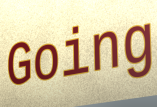
Going